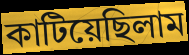
কাটিয়েছিলাম